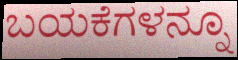
ಬಯಕೆಗಳನ್ನೂ